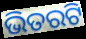
ଭିତରଟି